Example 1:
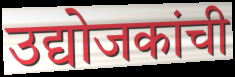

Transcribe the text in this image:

उद्योजकांची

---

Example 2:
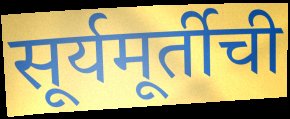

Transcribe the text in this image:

सूर्यमूर्तीची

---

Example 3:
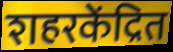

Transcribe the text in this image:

शहरकेंद्रित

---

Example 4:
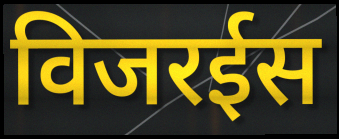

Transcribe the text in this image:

विजरईस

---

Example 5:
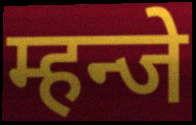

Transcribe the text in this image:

म्हन्जे